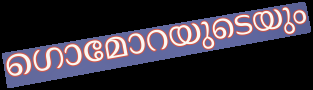
ഗൊമോറയുടെയും